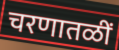
चरणातळीं